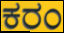
ಕರಂ